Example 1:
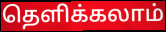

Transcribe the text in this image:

தெளிக்கலாம்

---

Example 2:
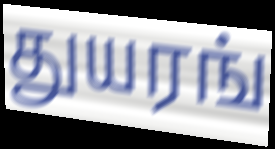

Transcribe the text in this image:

துயரங்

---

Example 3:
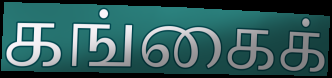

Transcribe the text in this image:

கங்கைக்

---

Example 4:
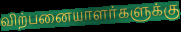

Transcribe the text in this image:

விற்பனையாளர்களுக்கு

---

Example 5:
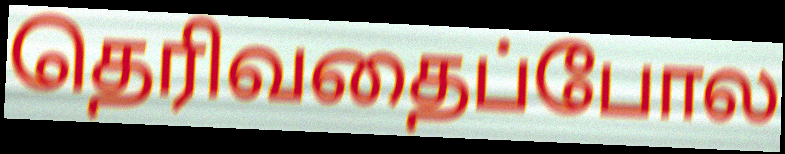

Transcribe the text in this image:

தெரிவதைப்போல